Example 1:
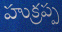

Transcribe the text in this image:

హుక్రప్ప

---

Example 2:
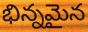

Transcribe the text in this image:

భిన్నమైన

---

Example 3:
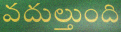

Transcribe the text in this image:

వదుల్తుంది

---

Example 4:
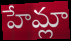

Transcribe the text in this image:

హేమ్లా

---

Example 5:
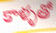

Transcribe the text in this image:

కాళ్ళతో